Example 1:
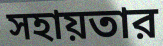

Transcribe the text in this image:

সহায়তার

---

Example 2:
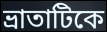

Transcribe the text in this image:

ভ্রাতাটিকে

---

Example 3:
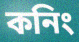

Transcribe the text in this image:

কনিং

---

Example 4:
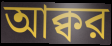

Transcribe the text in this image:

আক্বর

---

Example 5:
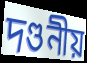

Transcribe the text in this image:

দণ্ডনীয়